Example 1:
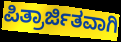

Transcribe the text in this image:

ಪಿತ್ರಾರ್ಜಿತವಾಗಿ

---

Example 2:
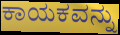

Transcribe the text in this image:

ಕಾಯಕವನ್ನು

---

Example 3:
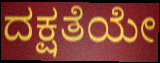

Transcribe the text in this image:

ದಕ್ಷತೆಯೇ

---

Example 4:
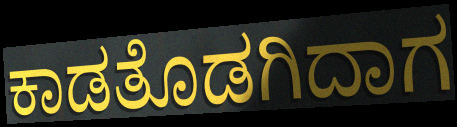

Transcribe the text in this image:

ಕಾಡತೊಡಗಿದಾಗ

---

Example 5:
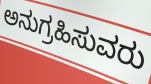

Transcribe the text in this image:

ಅನುಗ್ರಹಿಸುವರು